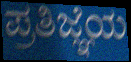
ಪ್ರತಿಜ್ಞೆಯ